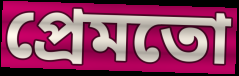
প্ৰেমতো